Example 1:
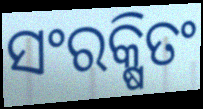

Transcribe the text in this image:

ସଂରକ୍ଷିତଂ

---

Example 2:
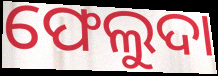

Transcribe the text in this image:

ଫେଲୁଦା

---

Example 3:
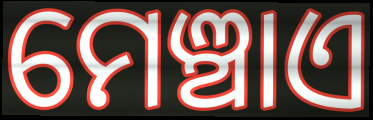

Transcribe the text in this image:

ମେଞ୍ଚାଏ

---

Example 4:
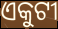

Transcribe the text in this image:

ଏକୁଟୀ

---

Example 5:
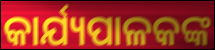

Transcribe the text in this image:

କାର୍ଯ୍ୟପାଳକଙ୍କ